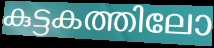
കുട്ടകത്തിലോ